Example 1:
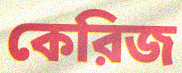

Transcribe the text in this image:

কেরিজ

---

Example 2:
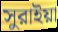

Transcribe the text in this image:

সুরাইয়া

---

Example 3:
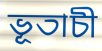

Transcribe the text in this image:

ভূতাচী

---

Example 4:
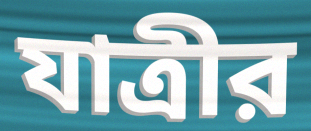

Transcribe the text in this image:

যাত্রীর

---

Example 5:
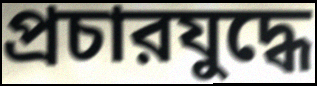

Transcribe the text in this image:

প্রচারযুদ্ধে